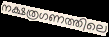
നക്ഷത്രഗണത്തിലെ